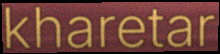
kharetar